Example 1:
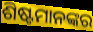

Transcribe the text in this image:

ଶିଷ୍ଟମାନଙ୍କର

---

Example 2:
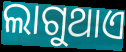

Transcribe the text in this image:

ଲାଗୁଥାଏ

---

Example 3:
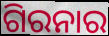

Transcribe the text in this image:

ଗିରନାର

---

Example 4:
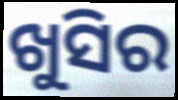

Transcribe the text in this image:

ଖୁସିର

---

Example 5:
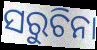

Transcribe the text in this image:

ସରୁଚିନା